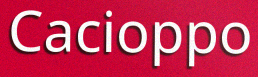
Cacioppo